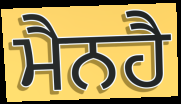
ਮੈਨਹੈ